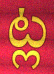
ట్ల